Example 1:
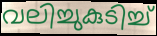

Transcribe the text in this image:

വലിച്ചുകുടിച്ച്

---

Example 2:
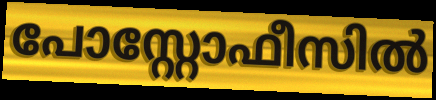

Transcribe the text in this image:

പോസ്റ്റോഫീസിൽ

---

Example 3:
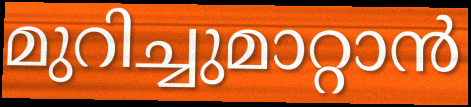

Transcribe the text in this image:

മുറിച്ചുമാറ്റാൻ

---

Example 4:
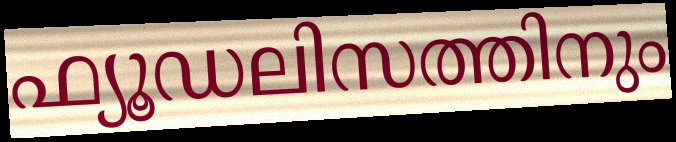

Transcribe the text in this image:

ഫ്യൂഡലിസത്തിനും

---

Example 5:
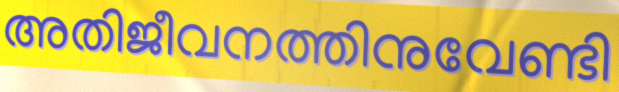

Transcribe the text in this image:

അതിജീവനത്തിനുവേണ്ടി